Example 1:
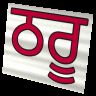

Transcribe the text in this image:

ਠਰੂ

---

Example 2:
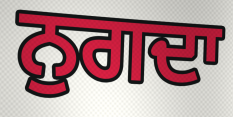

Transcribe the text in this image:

ਨੁਗਦਾ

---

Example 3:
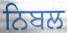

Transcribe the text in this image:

ਨਿਬਲ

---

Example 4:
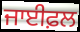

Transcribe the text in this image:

ਜਾਈਫ਼ਲ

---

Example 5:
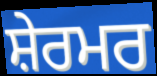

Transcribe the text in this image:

ਸ਼ੇਰਮਰ